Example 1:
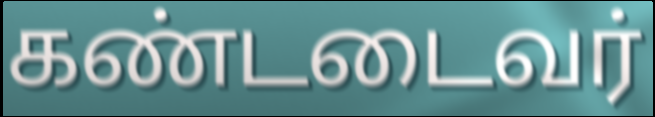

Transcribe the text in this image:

கண்டடைவர்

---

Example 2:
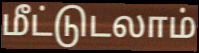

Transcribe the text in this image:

மீட்டுடலாம்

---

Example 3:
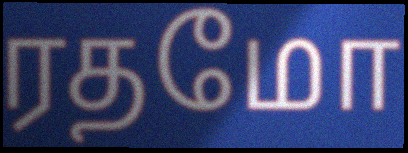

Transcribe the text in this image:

ரதமோ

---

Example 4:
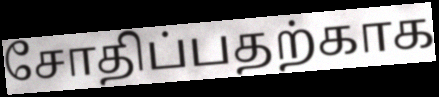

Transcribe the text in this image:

சோதிப்பதற்காக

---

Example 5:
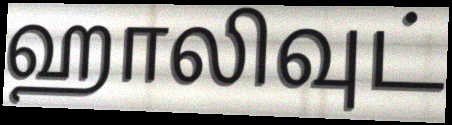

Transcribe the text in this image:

ஹாலிவுட்